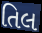
તિલ